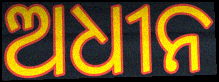
ଅଧୀନ